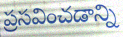
ప్రసవించడాన్ని